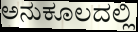
ಅನುಕೂಲದಲ್ಲಿ